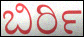
ಬಿರ್ರಿ